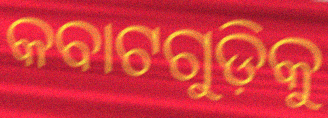
କବାଟଗୁଡ଼ିକୁ